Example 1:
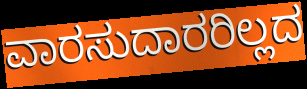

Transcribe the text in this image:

ವಾರಸುದಾರರಿಲ್ಲದ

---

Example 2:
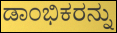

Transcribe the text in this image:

ಡಾಂಭಿಕರನ್ನು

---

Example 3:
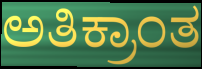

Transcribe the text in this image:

ಅತಿಕ್ರಾಂತ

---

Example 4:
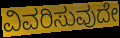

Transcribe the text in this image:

ವಿವರಿಸುವುದೇ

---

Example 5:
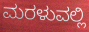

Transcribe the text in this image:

ಮರಳುವಲ್ಲಿ